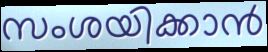
സംശയിക്കാൻ